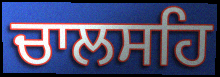
ਚਾਲਸਹਿ